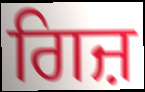
ਗਿਜ਼